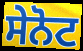
ਸੇਨੋਟ